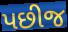
પછીજ